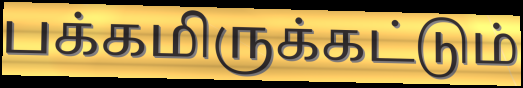
பக்கமிருக்கட்டும்